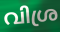
വിശ്ര